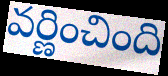
వర్ణించింది